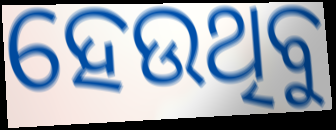
ହେଉଥିବୁ